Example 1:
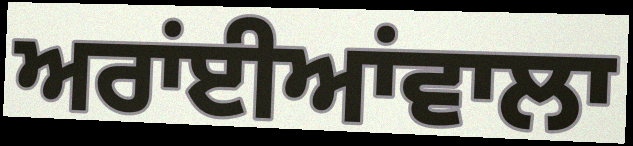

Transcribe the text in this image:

ਅਰਾਂਈਆਂਵਾਲਾ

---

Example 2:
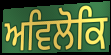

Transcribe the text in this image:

ਅਵਿਲੋਕਿ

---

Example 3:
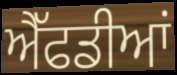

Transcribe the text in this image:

ਐੱਫਡੀਆਂ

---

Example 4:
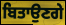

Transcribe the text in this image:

ਬਿਤਾਉਣਗੇ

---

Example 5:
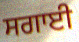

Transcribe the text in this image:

ਸਗਾਈ